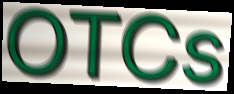
OTCs